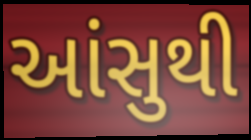
આંસુથી